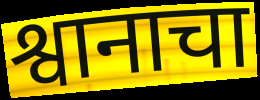
श्वानाचा